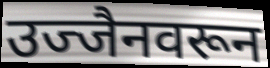
उज्जैनवरून